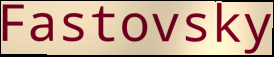
Fastovsky